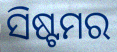
ସିଷ୍ଟମର